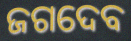
ଜଗଦେବ